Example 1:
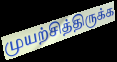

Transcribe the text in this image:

முயற்சித்திருக்க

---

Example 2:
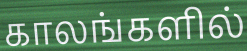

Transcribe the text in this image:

காலங்களில்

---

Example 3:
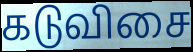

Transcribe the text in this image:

கடுவிசை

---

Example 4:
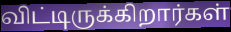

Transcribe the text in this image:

விட்டிருக்கிறார்கள்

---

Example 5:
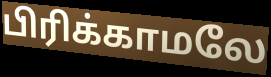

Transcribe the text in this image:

பிரிக்காமலே